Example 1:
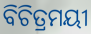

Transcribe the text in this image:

ବିଚିତ୍ରମୟୀ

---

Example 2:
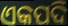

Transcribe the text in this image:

ଏକପଦି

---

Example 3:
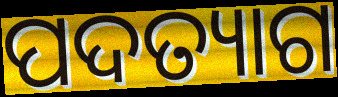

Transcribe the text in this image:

ପଦତ୍ୟାଗ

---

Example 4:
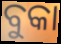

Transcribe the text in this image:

ବୁକା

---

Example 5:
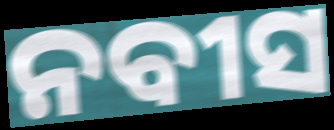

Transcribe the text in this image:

ନବୀସ